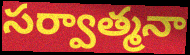
సర్వాత్మనా